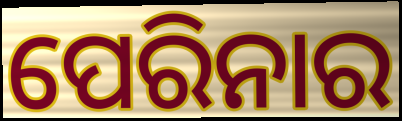
ପେରିନାର